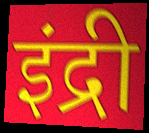
इंद्री